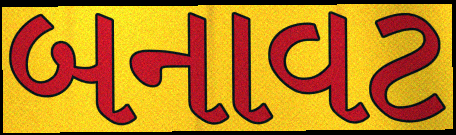
બનાવટ